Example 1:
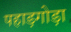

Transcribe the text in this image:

पहाड़गोड़ा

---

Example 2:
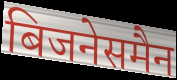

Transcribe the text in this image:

बिजनेसमैन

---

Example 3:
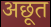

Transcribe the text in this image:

अछूत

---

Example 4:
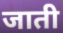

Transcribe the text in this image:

जाती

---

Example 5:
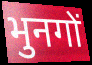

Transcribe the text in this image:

भुनगों